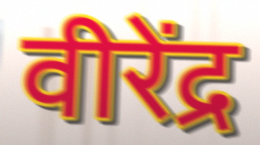
वीरेंद्र